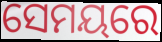
ସେମୟରେ